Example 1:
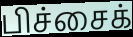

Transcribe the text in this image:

பிச்சைக்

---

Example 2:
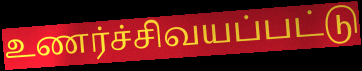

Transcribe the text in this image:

உணர்ச்சிவயப்பட்டு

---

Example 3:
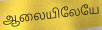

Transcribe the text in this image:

ஆலையிலேயே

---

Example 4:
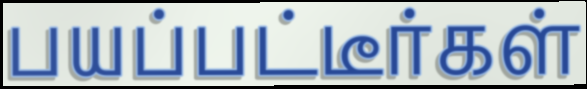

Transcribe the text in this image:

பயப்பட்டீர்கள்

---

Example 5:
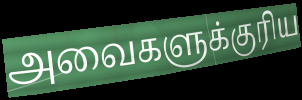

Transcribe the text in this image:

அவைகளுக்குரிய